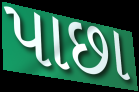
પાછા